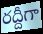
రద్దీగా